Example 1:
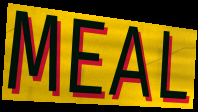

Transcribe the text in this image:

MEAL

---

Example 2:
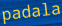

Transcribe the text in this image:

padala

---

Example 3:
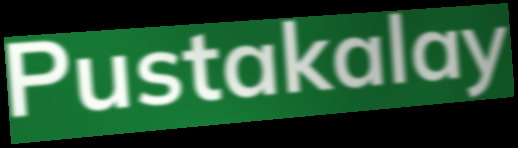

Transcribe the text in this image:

Pustakalay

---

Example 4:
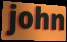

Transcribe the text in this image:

john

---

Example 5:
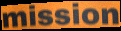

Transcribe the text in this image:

mission